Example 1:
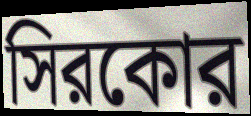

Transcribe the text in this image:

সিরকোর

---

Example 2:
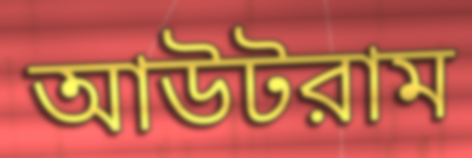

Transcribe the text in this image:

আউটরাম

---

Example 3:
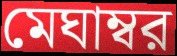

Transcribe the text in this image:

মেঘাম্বর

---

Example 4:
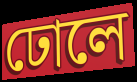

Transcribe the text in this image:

ঢোলে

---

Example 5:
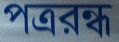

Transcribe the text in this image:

পত্ররন্ধ